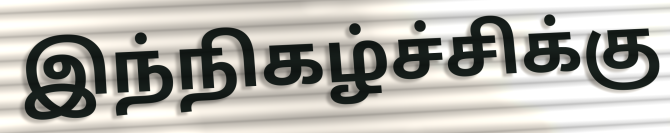
இந்நிகழ்ச்சிக்கு